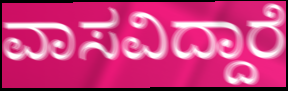
ವಾಸವಿದ್ದಾರೆ